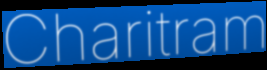
Charitram